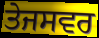
ਤੇਜਸਵਰ